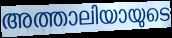
അത്താലിയായുടെ